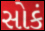
સોકં